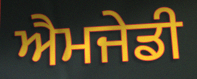
ਐਮਜੇਡੀ